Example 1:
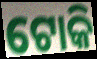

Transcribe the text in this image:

ଟୋକି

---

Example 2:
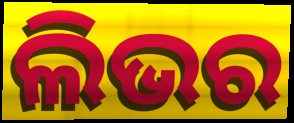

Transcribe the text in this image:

ଲିଭର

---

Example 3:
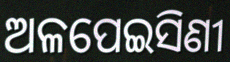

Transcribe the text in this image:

ଅଳପେଇସିଣୀ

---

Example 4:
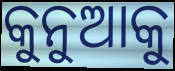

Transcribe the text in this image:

କୁନୁଆକୁ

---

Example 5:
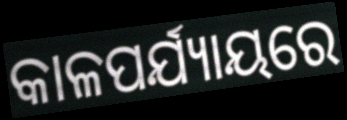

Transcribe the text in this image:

କାଳପର୍ଯ୍ୟାୟରେ